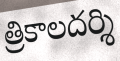
త్రికాలదర్శి